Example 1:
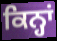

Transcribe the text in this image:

ਕਿਨ੍ਹਾਂ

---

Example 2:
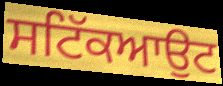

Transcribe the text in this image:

ਸਟਿੱਕਆਉਟ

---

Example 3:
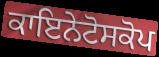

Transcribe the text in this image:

ਕਾਇਨੇਟੋਸਕੋਪ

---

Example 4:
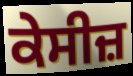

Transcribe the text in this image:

ਕੇਸੀਜ਼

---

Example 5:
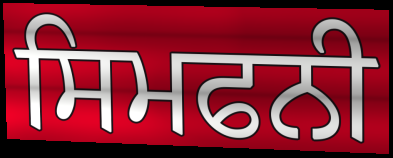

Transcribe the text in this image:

ਸਿਮਫਨੀ